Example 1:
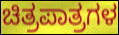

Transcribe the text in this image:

ಚಿತ್ರಪಾತ್ರಗಳ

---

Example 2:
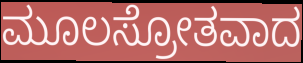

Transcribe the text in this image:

ಮೂಲಸ್ರೋತವಾದ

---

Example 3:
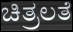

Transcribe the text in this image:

ಚಿತ್ರಲತೆ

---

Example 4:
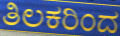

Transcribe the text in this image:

ತಿಲಕರಿಂದ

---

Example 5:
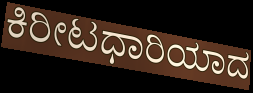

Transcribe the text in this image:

ಕಿರೀಟಧಾರಿಯಾದ